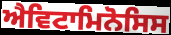
ਐਵਿਟਾਮਿਨੋਸਿਸ